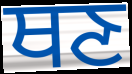
ਥਣ